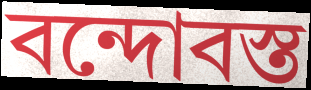
বন্দোবস্ত